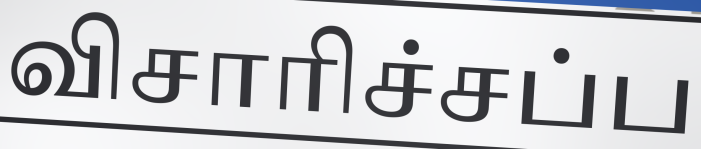
விசாரிச்சப்ப